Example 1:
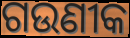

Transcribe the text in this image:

ଗଉଣୀକ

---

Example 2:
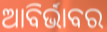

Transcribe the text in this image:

ଆବିର୍ଭାବର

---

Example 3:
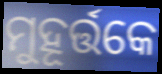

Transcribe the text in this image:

ମୁହୂର୍ତ୍ତକେ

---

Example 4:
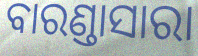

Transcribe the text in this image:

ବାରଣ୍ଡାସାରା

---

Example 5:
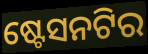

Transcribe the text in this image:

ଷ୍ଟେସନଟିର